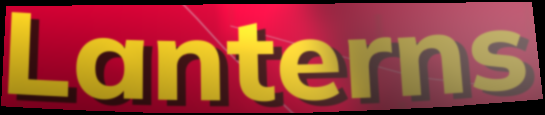
Lanterns